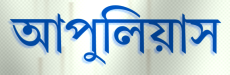
আপুলিয়াস